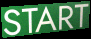
START